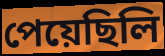
পেয়েছিলি